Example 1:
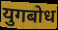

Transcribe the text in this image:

युगबोध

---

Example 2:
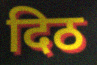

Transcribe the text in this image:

दिठ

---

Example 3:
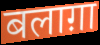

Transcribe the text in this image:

बलाग़ा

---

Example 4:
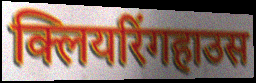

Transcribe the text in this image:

क्लियरिंगहाउस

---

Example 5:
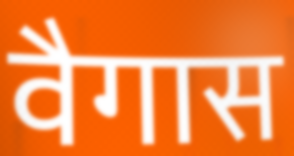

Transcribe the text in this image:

वैगास